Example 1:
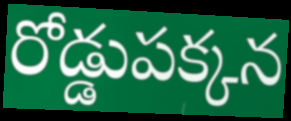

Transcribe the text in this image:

రోడ్డుపక్కన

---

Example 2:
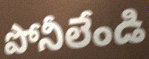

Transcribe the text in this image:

పోనీలేండి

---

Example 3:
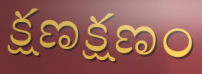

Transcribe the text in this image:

క్షణక్షణం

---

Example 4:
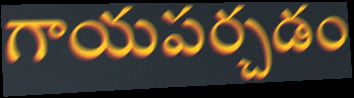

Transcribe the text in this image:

గాయపర్చడం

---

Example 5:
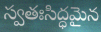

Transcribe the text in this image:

స్వతఃసిద్ధమైన